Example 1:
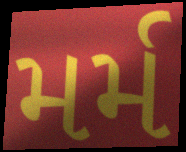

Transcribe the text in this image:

મર્મ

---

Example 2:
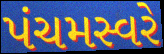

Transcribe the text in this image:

પંચમસ્વરે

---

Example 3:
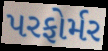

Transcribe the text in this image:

પરફોર્મર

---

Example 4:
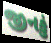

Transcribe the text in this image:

જીનકું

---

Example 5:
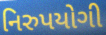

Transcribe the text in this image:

નિરુપયોગી